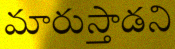
మారుస్తాడని